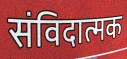
संविदात्मक